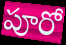
పూరో